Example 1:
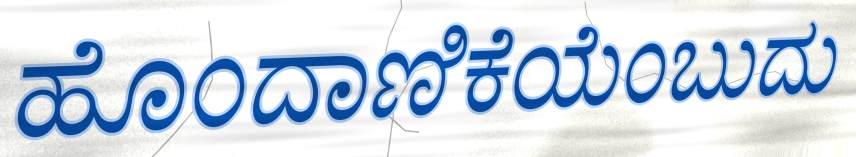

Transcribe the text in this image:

ಹೊಂದಾಣಿಕೆಯೆಂಬುದು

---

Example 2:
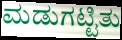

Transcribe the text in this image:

ಮಡುಗಟ್ಟಿತು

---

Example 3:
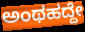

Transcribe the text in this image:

ಅಂಥಹದ್ದೇ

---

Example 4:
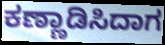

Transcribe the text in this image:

ಕಣ್ಣಾಡಿಸಿದಾಗ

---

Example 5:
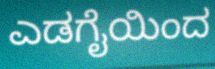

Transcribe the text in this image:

ಎಡಗೈಯಿಂದ